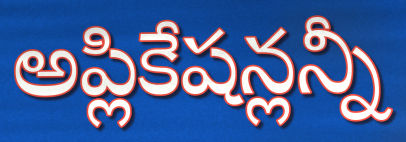
అప్లికేషన్లన్నీ